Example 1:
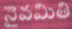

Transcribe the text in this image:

నైవమితి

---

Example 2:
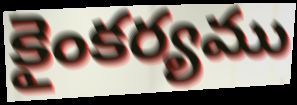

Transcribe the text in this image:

కైంకర్యము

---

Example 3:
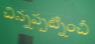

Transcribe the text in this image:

చిన్నప్పట్నించీ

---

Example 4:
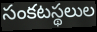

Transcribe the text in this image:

సంకటస్థలుల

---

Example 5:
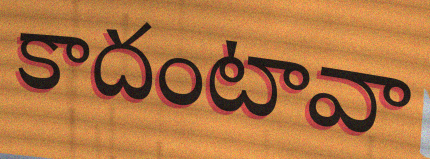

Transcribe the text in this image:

కాదంటావా